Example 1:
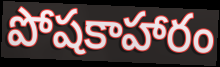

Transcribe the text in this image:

పోషకాహారం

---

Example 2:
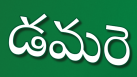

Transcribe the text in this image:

డమరె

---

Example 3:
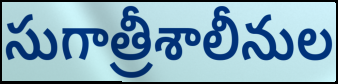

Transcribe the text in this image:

సుగాత్రీశాలీనుల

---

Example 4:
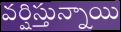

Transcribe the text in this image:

వర్షిస్తున్నాయి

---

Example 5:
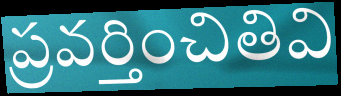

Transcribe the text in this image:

ప్రవర్తించితివి